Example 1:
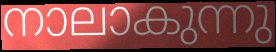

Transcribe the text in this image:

നാലാകുന്നു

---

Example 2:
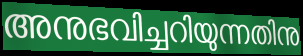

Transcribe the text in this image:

അനുഭവിച്ചറിയുന്നതിനു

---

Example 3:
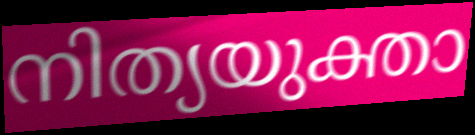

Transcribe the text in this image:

നിത്യയുക്താ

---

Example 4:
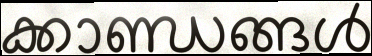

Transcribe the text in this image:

ക്കാണ്ഡങ്ങൾ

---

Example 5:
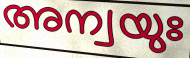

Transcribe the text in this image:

അന്വയുഃ